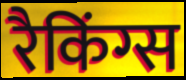
रैकिंग्स